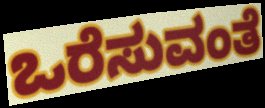
ಒರೆಸುವಂತೆ